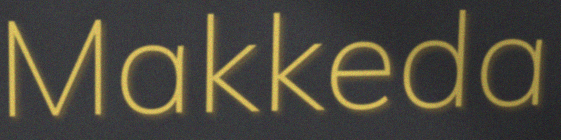
Makkeda